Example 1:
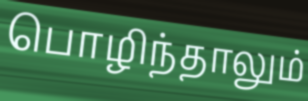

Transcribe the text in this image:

பொழிந்தாலும்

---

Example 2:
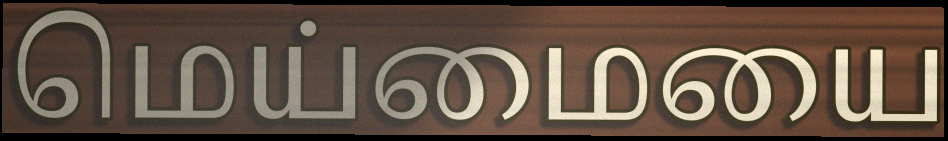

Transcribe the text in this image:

மெய்மையை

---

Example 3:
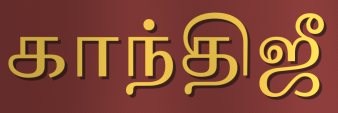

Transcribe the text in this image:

காந்திஜீ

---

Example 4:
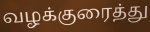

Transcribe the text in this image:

வழக்குரைத்து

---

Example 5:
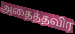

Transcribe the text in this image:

அதைத்தவிர